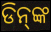
ଡିନ୍‌ଙ୍କ